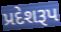
પ્રદેશરૂપ